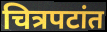
चित्रपटांत